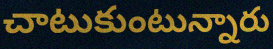
చాటుకుంటున్నారు